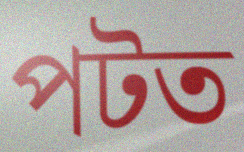
পটত